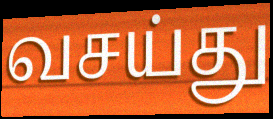
வசய்து